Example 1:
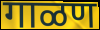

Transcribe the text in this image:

गाळण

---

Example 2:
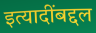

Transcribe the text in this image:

इत्यादींबद्दल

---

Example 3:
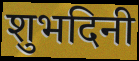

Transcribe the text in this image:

शुभदिनी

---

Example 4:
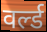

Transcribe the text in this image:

वर्ल्ड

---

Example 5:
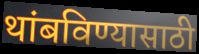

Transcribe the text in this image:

थांबविण्यासाठी